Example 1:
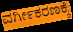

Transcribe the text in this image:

ವರ್ಗೀಕರಣಕ್ಕೆ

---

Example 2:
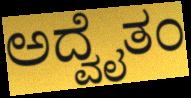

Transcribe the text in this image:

ಅದ್ವೈತಂ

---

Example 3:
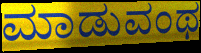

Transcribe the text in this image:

ಮಾಡುವಂಥ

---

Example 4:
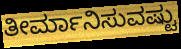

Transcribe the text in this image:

ತೀರ್ಮಾನಿಸುವಷ್ಟು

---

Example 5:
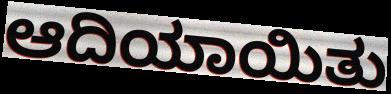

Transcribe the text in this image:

ಆದಿಯಾಯಿತು